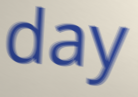
day